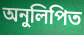
অনুলিপিত